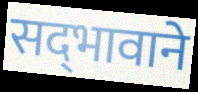
सद्‌भावाने